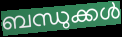
ബന്ധുക്കൾ